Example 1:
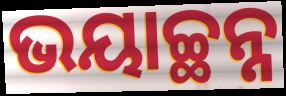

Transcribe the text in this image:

ଭୟାଚ୍ଛନ୍ନ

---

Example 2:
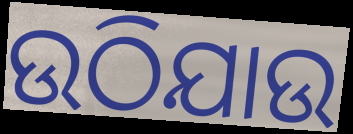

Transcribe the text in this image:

ଉଠିଯାଉ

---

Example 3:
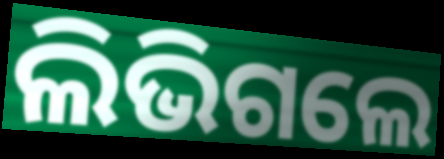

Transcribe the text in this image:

ଲିଭିଗଲେ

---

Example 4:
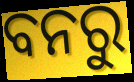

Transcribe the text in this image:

ବନରୁ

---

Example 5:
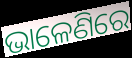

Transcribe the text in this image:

ଭାଳେଣିରେ